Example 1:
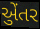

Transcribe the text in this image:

એુંતર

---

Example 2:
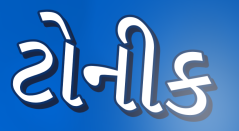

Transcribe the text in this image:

ટોનીક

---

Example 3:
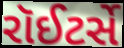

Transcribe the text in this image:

રૉઈટર્સે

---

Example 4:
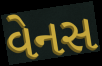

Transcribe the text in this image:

વેનસ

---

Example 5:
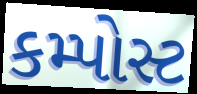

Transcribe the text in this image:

કમ્પોસ્ટ